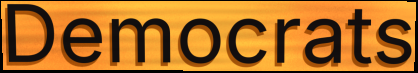
Democrats